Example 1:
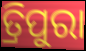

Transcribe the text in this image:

ତ୍ରିପୁରା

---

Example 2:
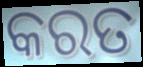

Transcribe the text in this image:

କରତ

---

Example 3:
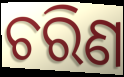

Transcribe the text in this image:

ଚରିଣ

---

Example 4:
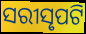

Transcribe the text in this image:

ସରୀସୃପଟି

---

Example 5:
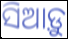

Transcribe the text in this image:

ସିଆଡ଼ୁ